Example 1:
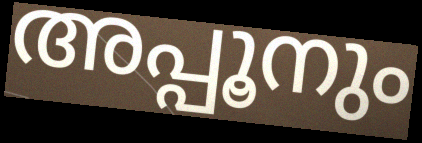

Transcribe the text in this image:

അപ്പൂനും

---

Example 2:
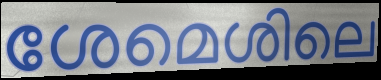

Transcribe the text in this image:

ശേമെശിലെ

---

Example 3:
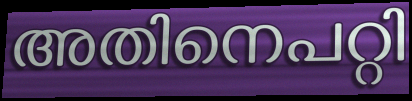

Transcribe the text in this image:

അതിനെപറ്റി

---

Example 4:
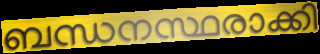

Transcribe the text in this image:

ബന്ധനസ്ഥരാക്കി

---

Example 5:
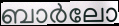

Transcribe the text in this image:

ബാർലോ